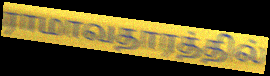
ராமாவதாரத்தில்